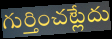
గుర్తించట్లేదు